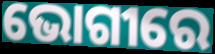
ଭୋଗୀରେ